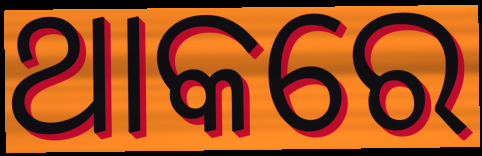
ଥାକରେ